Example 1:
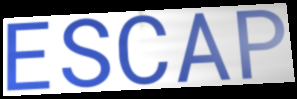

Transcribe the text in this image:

ESCAP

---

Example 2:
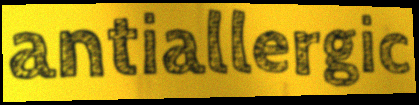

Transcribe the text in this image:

antiallergic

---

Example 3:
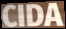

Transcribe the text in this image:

CIDA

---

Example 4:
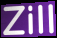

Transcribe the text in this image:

Zill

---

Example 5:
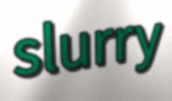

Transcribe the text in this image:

slurry